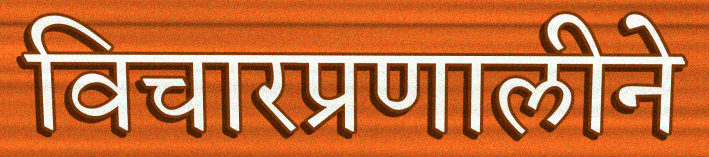
विचारप्रणालीने